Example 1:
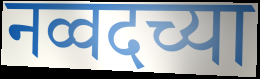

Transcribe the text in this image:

नव्वदच्या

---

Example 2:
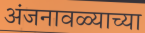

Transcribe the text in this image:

अंजनावळ्याच्या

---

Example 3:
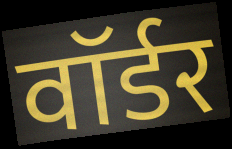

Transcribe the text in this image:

वॉर्डर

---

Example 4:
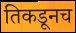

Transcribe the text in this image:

तिकडूनच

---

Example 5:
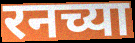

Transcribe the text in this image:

रनच्या